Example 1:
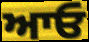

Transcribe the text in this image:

ਆਓ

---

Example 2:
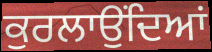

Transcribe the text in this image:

ਕੁਰਲਾਉਂਦਿਆਂ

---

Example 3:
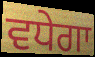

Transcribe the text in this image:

ਵਧੇਗਾ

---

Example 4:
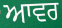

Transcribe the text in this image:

ਆਵਰ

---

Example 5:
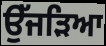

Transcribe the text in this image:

ਉੱਜੜਿਆ